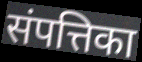
संपत्तिका